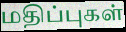
மதிப்புகள்